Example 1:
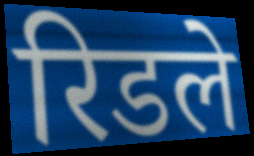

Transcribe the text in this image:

रिडले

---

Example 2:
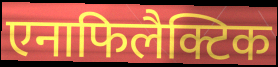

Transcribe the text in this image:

एनाफिलैक्टिक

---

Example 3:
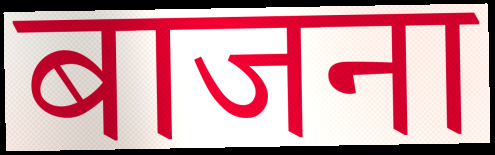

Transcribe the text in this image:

बाजना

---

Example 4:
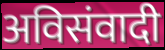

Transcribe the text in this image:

अविसंवादी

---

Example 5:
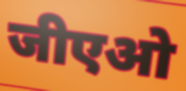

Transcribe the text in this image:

जीएओ